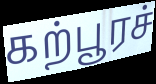
கற்பூரச்